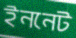
ইননেট